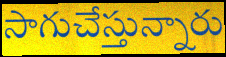
సాగుచేస్తున్నారు